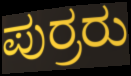
ಪುರ್ರರು